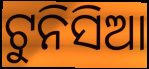
ଟୁନିସିଆ